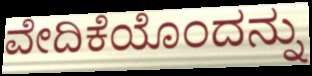
ವೇದಿಕೆಯೊಂದನ್ನು